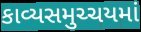
કાવ્યસમુચ્ચયમાં